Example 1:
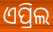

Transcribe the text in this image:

ଏପ୍ରିଲ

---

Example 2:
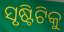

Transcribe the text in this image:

ସୃଷ୍ଟିଟିକୁ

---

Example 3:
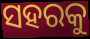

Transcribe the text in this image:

ସହରକୁ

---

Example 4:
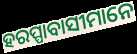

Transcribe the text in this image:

ହରପ୍ପାବାସୀମାନେ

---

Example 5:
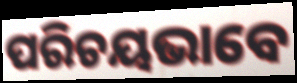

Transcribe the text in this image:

ପରିଚୟଭାବେ